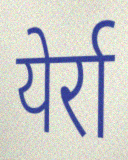
येर्रा